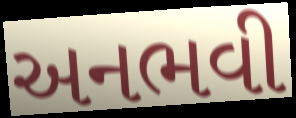
અનભવી